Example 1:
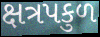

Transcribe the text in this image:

ક્ષત્રપકુળ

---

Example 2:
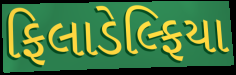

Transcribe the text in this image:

ફિલાડેલ્ફિયા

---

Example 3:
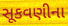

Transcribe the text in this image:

સૂકવણીના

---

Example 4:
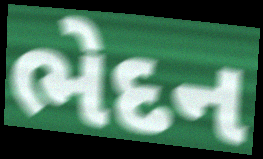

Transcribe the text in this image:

ભેદન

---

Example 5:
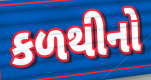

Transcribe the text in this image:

કળથીનો